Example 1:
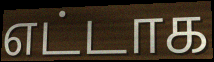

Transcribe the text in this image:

எட்டாக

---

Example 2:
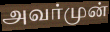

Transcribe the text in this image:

அவர்முன்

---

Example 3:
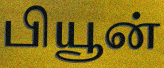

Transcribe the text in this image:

பியூன்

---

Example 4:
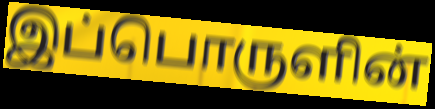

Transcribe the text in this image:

இப்பொருளின்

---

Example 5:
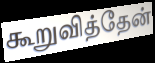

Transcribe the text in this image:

கூறுவித்தேன்